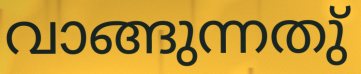
വാങ്ങുന്നതു്